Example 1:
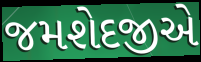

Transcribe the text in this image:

જમશેદજીએ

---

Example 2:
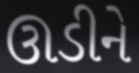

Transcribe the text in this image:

ઊડીને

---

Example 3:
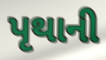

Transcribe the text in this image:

પૃથાની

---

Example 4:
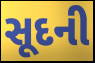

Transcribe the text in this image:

સૂદની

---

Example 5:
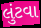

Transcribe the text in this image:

લુંટવા